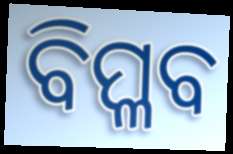
ବିପ୍ଳବ